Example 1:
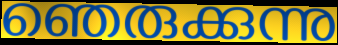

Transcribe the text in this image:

ഞെരുക്കുന്നു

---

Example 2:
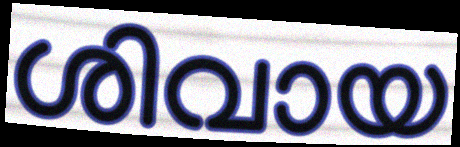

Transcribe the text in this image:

ശിവായ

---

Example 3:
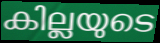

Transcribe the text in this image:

കില്ലയുടെ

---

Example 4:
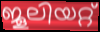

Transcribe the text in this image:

ജൂലിയറ്റ്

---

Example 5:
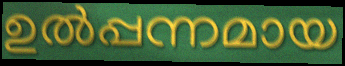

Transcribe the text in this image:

ഉൽപ്പന്നമായ